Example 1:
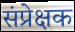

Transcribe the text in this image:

संप्रेक्षक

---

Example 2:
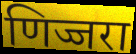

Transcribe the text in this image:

णिज्जरा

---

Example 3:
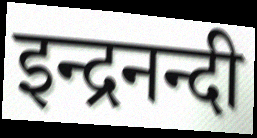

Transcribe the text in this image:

इन्द्रनन्दी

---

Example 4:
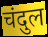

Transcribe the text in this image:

चंदुल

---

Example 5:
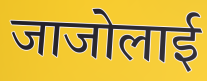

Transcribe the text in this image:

जाजोलाई